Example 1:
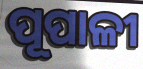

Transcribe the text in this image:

ପୂପାଳୀ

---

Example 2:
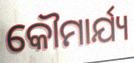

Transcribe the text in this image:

କୌମାର୍ଯ୍ୟ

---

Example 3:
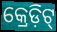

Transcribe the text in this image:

କ୍ରେଡ଼ିଟ୍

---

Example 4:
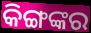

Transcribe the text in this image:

କିଙ୍ଗଙ୍କର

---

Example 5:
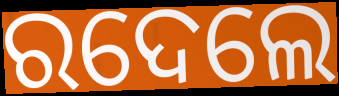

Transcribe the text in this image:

ରଦେଲେ